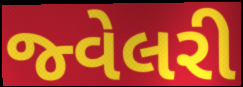
જ્વેલરી